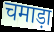
चमाड़ा